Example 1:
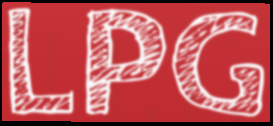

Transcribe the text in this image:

LPG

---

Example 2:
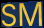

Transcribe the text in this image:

SM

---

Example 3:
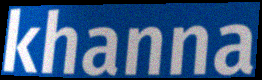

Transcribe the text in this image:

khanna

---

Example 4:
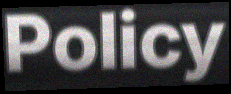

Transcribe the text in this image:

Policy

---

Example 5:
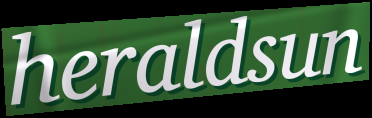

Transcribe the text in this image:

heraldsun